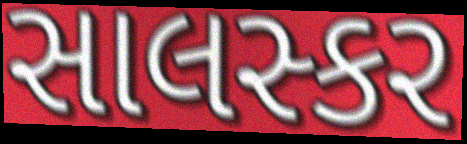
સાલસ્કર